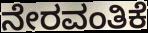
ನೇರವಂತಿಕೆ